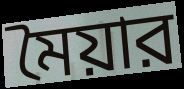
মৈয়ার